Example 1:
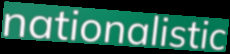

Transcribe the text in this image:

nationalistic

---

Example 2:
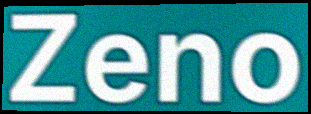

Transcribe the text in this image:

Zeno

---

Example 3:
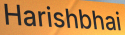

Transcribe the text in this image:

Harishbhai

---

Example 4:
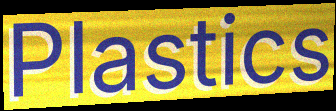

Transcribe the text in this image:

Plastics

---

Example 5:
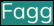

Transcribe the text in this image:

Fagg